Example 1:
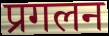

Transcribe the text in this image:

प्रगलन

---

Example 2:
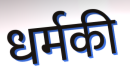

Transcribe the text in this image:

धर्मकी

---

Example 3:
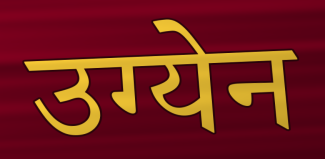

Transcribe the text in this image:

उग्येन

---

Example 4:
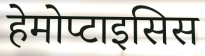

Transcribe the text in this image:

हेमोप्टाइसिस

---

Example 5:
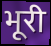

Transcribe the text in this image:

भूरी